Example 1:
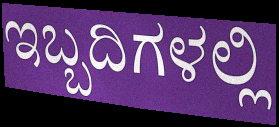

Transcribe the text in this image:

ಇಬ್ಬದಿಗಳಲ್ಲಿ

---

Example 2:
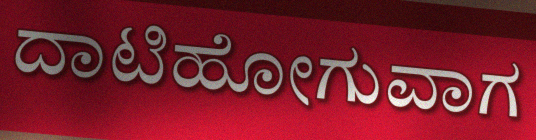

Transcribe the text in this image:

ದಾಟಿಹೋಗುವಾಗ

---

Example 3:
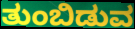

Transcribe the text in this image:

ತುಂಬಿಡುವ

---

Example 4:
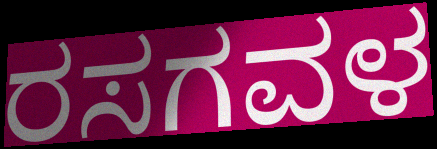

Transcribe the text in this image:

ರಸಗವಳ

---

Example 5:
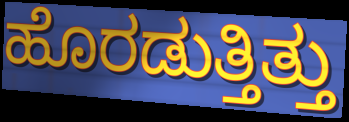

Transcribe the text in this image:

ಹೊರಡುತ್ತಿತ್ತು